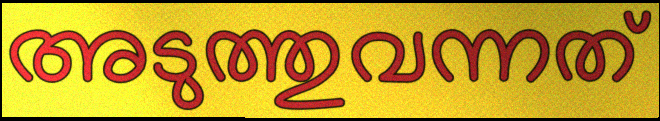
അടുത്തുവന്നത്